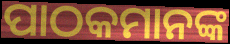
ପାଠକମାନଙ୍କ